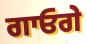
ਗਾਓਗੇ